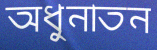
অধুনাতন